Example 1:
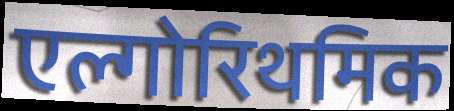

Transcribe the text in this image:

एल्गोरिथमिक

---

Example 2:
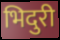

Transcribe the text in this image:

भिदुरी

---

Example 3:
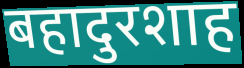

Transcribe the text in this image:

बहादुरशाह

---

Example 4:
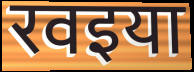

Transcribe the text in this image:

रवइया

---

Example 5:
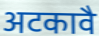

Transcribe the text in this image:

अटकावै